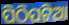
ପିଠିପଟିଆ